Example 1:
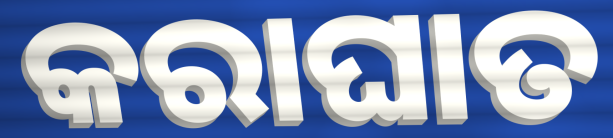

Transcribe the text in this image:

କରାଘାତ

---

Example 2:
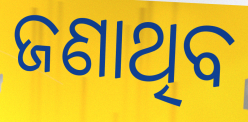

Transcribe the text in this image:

ଜଣାଥିବ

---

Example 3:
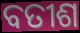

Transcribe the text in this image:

ବତୀଶ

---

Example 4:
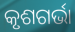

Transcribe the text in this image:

କୃଶଗର୍ଭା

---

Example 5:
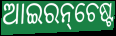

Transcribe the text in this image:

ଆଇରନ୍‌ଚେଷ୍ଟ